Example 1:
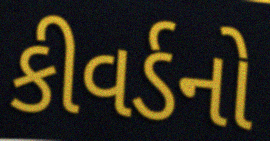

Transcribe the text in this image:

કીવર્ડનો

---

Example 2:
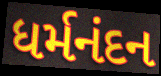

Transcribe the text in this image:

ધર્મનંદન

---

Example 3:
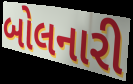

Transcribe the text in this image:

બોલનારી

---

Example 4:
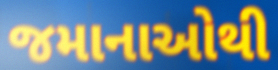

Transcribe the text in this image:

જમાનાઓથી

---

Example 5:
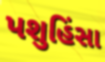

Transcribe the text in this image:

પશુહિંસા